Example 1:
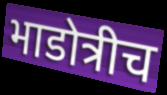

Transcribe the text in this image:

भाडोत्रीच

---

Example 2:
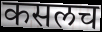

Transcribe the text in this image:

कसलच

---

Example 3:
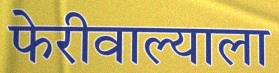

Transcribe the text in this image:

फेरीवाल्याला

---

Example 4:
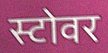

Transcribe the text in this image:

स्टोवर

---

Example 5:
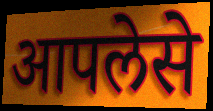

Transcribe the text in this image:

आपलेसे